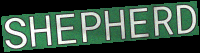
SHEPHERD